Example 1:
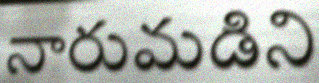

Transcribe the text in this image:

నారుమడిని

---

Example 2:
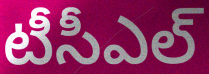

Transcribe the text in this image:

టీసీఎల్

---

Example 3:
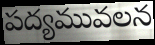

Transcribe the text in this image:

పద్యమువలన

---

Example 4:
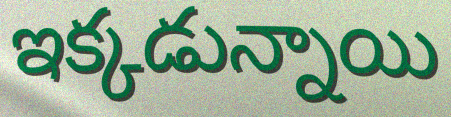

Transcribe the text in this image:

ఇక్కడున్నాయి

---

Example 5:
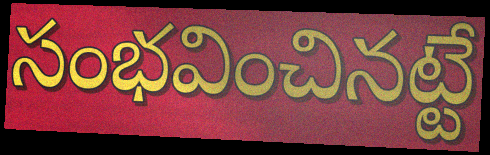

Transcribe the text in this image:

సంభవించినట్టే